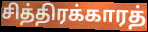
சித்திரக்காரத்